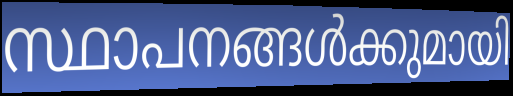
സ്ഥാപനങ്ങൾക്കുമായി